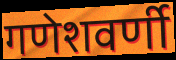
गणेशवर्णी